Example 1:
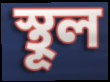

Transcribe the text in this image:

স্থূল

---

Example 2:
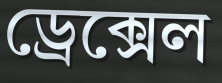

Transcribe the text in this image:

ড্রেক্সেল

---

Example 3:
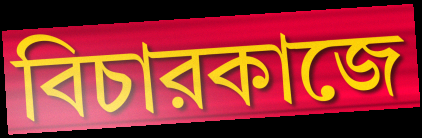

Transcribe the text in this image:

বিচারকাজে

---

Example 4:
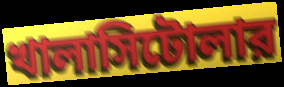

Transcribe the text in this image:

খালাসিটোলার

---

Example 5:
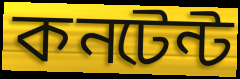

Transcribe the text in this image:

কনটেন্ট